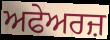
ਅਫੇਅਰਜ਼